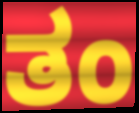
ತಂ